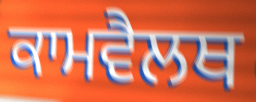
ਕਾਮਵੈਲਥ